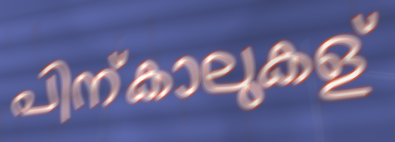
പിന്കാലുകള്